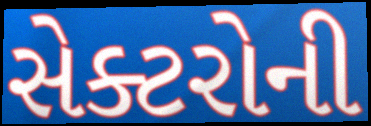
સેક્ટરોની